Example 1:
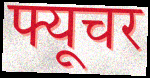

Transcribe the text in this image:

फ्यूचर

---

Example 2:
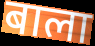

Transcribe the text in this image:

बाला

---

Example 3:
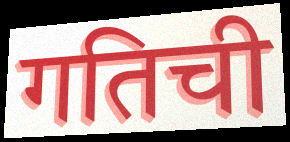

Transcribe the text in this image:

गतिची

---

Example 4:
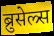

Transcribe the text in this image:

ब्रुसेल्स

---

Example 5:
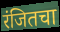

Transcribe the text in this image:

रंजितचा